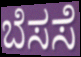
ಬೆಸಸೆ